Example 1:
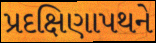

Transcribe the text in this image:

પ્રદક્ષિણાપથને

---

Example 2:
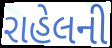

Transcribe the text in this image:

રાહેલની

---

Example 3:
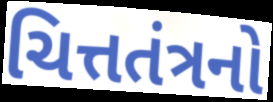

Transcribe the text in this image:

ચિત્તતંત્રનો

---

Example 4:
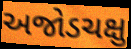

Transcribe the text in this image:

અજોડચક્ષુ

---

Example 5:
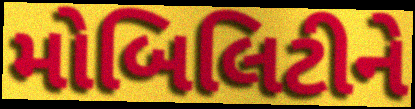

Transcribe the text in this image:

મોબિલિટીને